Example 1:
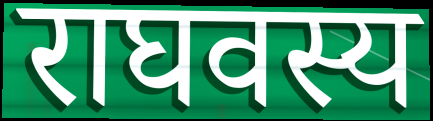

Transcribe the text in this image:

राघवस्य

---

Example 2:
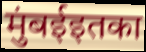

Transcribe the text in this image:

मुंबईइतका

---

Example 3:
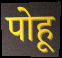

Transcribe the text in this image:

पोहू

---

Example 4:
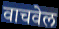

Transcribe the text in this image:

वाचवेल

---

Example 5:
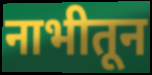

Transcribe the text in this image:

नाभीतून